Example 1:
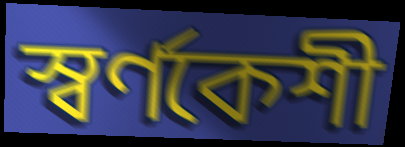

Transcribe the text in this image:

স্বর্ণকেশী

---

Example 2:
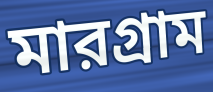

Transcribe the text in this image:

মারগ্রাম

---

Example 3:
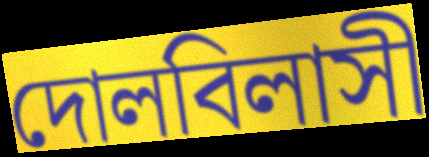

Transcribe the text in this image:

দোলবিলাসী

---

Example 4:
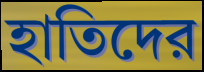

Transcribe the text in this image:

হাতিদের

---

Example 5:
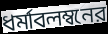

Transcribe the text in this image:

ধর্মাবলম্বনের